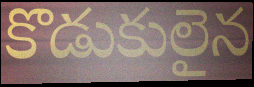
కొడుకులైన